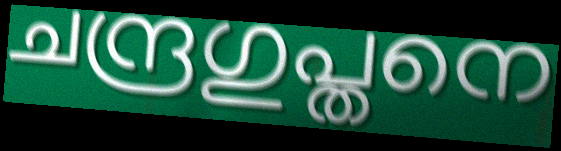
ചന്ദ്രഗുപ്തനെ